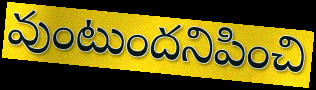
వుంటుందనిపించి